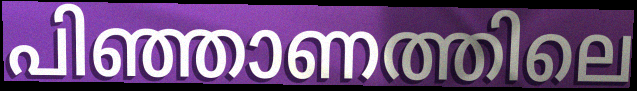
പിഞ്ഞാണത്തിലെ